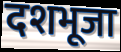
दशभूजा